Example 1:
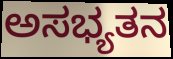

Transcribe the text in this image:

ಅಸಭ್ಯತನ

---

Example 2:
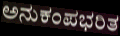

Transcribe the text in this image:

ಅನುಕಂಪಭರಿತ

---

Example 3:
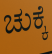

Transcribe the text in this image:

ಚುಕ್ಕೆ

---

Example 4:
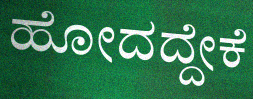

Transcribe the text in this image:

ಹೋದದ್ದೇಕೆ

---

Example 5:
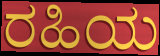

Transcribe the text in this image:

ರಹಿಯ